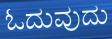
ಓದುವುದು